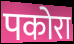
पकोरा